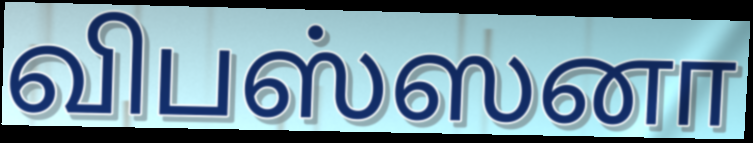
விபஸ்ஸனா